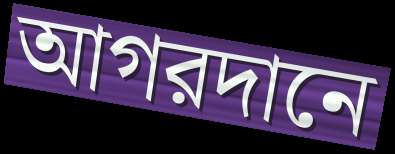
আগরদানে